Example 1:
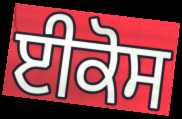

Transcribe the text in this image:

ਈਕੋਸ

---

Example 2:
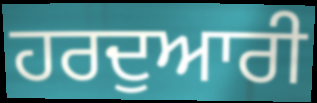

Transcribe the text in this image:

ਹਰਦੁਆਰੀ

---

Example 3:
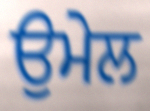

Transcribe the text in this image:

ਉਮੇਲ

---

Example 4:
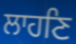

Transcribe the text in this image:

ਲਾਹਣਿ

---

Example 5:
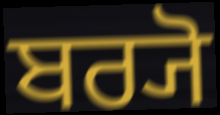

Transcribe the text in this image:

ਬਰ੍ਯੋ